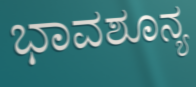
ಭಾವಶೂನ್ಯ